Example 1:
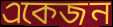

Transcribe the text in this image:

একেজন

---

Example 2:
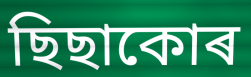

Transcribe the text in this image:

ছিছাকোৰ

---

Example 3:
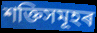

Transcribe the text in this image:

শক্তিসমূহৰ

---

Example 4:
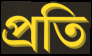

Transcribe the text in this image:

প্ৰতি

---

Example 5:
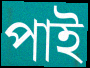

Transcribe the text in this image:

পাই